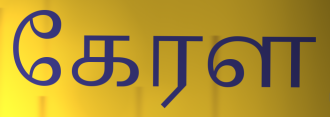
கேரள